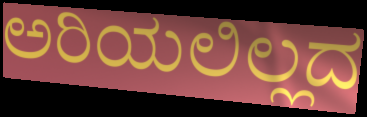
ಅರಿಯಲಿಲ್ಲದ